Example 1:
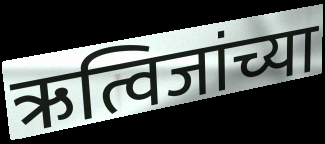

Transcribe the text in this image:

ऋत्विजांच्या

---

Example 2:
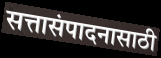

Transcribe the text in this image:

सत्तासंपादनासाठी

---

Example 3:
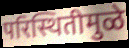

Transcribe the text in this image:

परिस्थितीमुळे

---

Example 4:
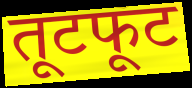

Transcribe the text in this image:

तूटफूट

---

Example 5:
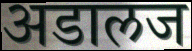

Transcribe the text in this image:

अडालज